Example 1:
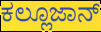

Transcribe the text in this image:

ಕಲ್ಲೂಜಾನ್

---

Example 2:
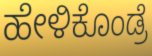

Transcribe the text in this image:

ಹೇಳಿಕೊಂಡ್ರೆ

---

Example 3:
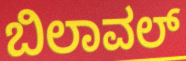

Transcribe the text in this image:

ಬಿಲಾವಲ್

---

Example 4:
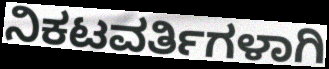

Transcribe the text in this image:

ನಿಕಟವರ್ತಿಗಳಾಗಿ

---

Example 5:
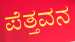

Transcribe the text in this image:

ಪೆತ್ತವನ